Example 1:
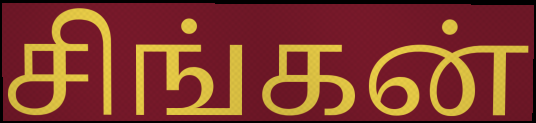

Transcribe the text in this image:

சிங்கன்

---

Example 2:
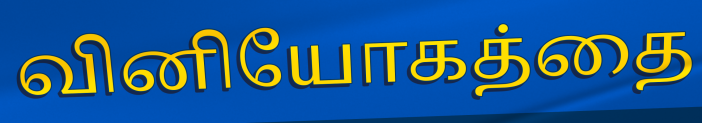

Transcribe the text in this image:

வினியோகத்தை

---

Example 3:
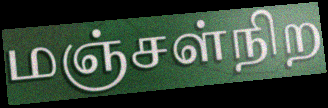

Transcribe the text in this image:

மஞ்சள்நிற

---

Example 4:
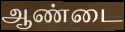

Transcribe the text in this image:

ஆண்டை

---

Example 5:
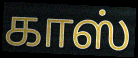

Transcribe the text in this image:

காஸ்